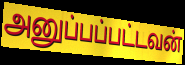
அனுப்பப்பட்டவன்